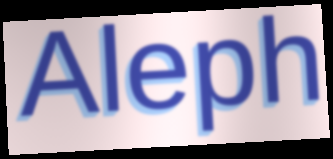
Aleph